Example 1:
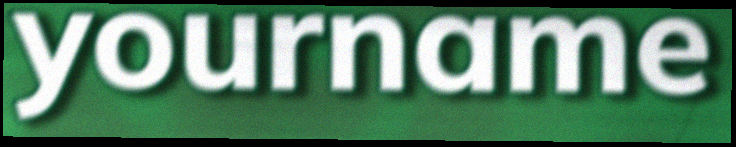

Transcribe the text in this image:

yourname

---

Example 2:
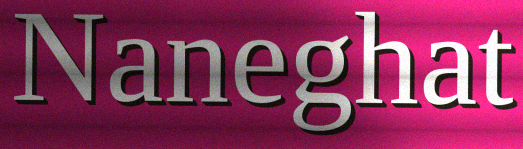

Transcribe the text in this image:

Naneghat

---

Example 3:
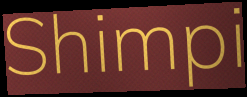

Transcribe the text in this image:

Shimpi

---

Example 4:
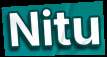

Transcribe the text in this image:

Nitu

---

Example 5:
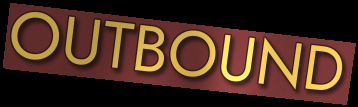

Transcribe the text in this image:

OUTBOUND